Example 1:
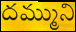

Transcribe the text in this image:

దమ్ముని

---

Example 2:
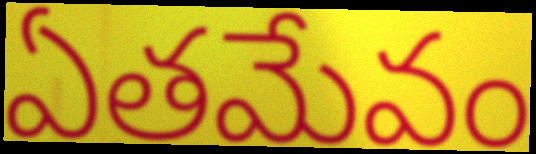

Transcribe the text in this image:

ఏతమేవం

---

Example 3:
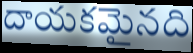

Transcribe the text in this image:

దాయకమైనది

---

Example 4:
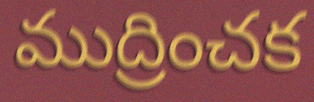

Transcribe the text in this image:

ముద్రించక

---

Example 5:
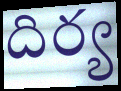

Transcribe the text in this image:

దిర్య